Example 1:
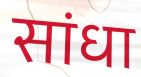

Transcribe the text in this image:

सांधा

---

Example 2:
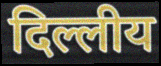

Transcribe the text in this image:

दिल्लीय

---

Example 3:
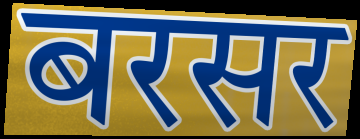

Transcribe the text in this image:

बरसर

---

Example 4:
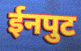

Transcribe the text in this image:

ईनपुट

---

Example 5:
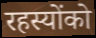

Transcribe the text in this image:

रहस्योंको